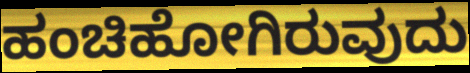
ಹಂಚಿಹೋಗಿರುವುದು